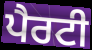
ਪੈਰਟੀ